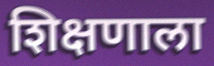
शिक्षणाला